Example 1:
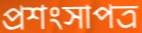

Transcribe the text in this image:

প্রশংসাপত্র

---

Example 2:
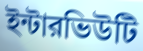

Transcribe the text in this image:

ইন্টারভিউটি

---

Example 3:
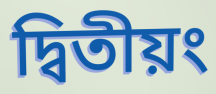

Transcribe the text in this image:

দ্বিতীয়ং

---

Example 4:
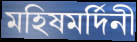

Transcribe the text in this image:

মহিষমর্দিনী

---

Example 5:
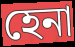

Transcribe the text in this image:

হেনা